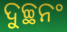
ଦୁଚ୍ଛନଂ